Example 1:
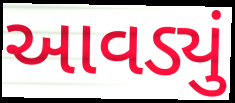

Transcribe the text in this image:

આવડ્યું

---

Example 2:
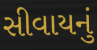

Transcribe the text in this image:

સીવાયનું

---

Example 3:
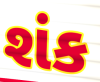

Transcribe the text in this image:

શંક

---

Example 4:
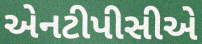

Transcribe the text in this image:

એનટીપીસીએ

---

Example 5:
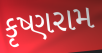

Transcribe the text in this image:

કૃષ્ણરામ